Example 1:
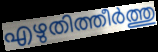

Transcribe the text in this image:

എഴുതിത്തീർത്തു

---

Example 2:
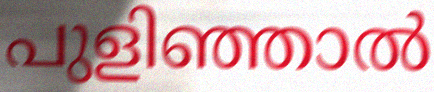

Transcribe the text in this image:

പുളിഞ്ഞാൽ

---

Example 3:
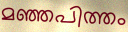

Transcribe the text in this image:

മഞ്ഞപിത്തം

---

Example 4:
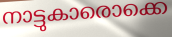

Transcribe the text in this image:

നാട്ടുകാരൊക്കെ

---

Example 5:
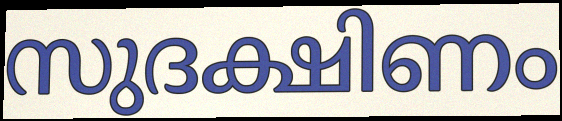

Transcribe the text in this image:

സുദക്ഷിണം